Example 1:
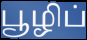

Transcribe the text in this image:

பூழிப்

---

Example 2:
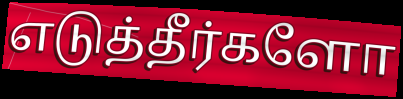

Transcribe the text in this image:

எடுத்தீர்களோ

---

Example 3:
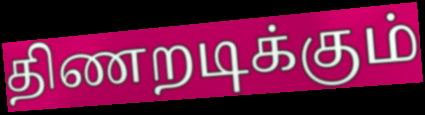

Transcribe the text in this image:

திணறடிக்கும்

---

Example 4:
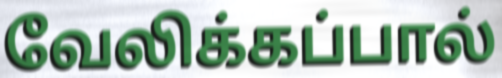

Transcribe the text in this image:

வேலிக்கப்பால்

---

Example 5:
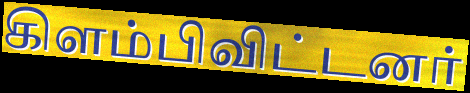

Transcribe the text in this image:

கிளம்பிவிட்டனர்